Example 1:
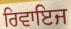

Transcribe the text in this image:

ਰਿਵਾਇਜ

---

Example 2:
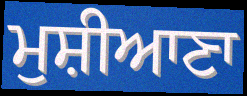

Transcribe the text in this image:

ਮੁਸ਼ੀਆਣਾ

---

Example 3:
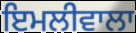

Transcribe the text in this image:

ਇਮਲੀਵਾਲਾ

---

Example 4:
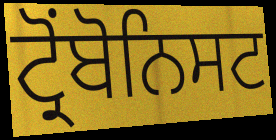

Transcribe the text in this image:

ਟ੍ਰੋਂਬੋਨਿਸਟ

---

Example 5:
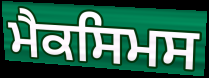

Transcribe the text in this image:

ਮੈਕਸਿਮਸ